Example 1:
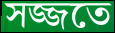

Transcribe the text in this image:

সজ্জতে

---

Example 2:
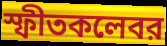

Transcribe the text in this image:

স্ফীতকলেবর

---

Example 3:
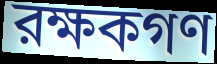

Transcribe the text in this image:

রক্ষকগণ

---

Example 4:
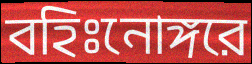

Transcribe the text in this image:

বহিঃনোঙ্গরে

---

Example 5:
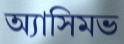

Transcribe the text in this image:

অ্যাসিমভ